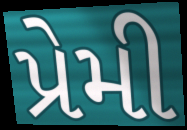
પ્રેમી